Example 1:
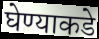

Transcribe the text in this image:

घेण्याकडे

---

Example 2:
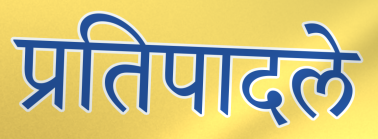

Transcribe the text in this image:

प्रतिपादले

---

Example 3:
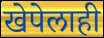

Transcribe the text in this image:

खेपेलाही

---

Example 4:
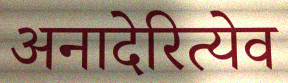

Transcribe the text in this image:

अनादेरित्येव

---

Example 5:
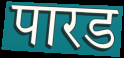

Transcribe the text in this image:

पारड